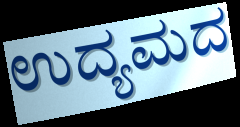
ಉದ್ಯಮದ